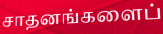
சாதனங்களைப்